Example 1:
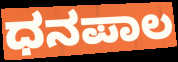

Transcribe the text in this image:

ಧನಪಾಲ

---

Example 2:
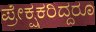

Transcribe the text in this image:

ಪ್ರೇಕ್ಷಕರಿದ್ದರೂ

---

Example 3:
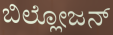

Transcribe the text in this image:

ಬಿಲ್ಲೋಜನ್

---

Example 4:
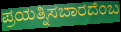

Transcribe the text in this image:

ಪ್ರಯತ್ನಿಸಬಾರದೆಂಬ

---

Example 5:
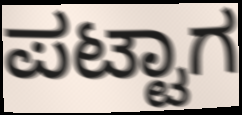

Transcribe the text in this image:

ಪಟ್ಟಾಗ